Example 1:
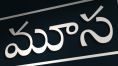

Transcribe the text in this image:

మూస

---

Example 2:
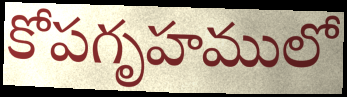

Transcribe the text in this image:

కోపగృహములో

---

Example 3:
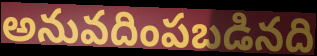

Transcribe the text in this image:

అనువదింపబడినది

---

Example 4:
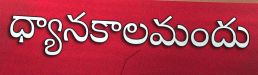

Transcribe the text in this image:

ధ్యానకాలమందు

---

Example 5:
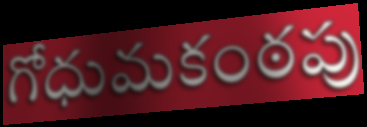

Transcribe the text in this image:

గోధుమకంఠపు